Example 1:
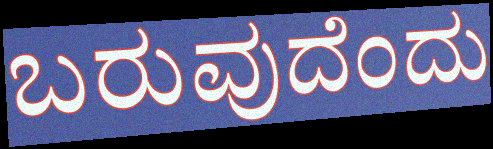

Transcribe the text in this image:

ಬರುವುದೆಂದು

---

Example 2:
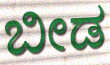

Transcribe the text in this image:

ಬೀಡ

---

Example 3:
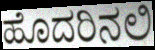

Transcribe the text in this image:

ಹೊದರಿನಲಿ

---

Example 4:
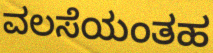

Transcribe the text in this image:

ವಲಸೆಯಂತಹ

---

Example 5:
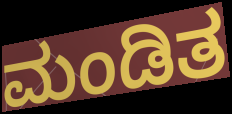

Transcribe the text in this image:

ಮಂಡಿತ